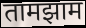
तामझाम